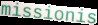
missionis